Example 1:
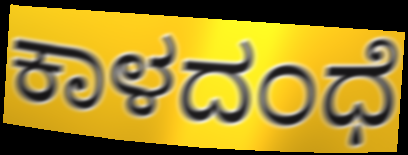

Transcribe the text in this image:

ಕಾಳದಂಧೆ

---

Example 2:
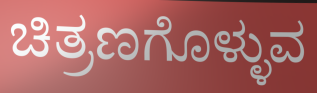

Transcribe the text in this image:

ಚಿತ್ರಣಗೊಳ್ಳುವ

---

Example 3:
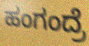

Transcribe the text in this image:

ಹಂಗಂದ್ರೆ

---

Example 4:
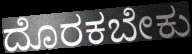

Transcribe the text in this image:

ದೊರಕಬೇಕು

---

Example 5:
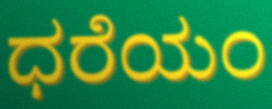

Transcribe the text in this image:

ಧರೆಯಂ